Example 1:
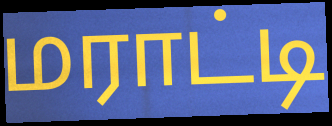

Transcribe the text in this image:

மராட்டி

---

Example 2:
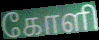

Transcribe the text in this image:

கோளி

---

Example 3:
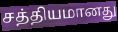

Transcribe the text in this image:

சத்தியமானது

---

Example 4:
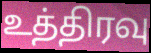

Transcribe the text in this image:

உத்திரவு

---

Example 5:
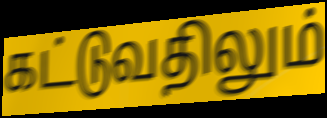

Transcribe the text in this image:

கட்டுவதிலும்